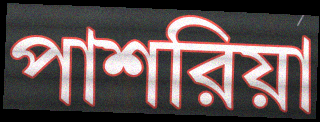
পাশরিয়া